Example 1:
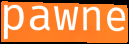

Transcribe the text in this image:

pawne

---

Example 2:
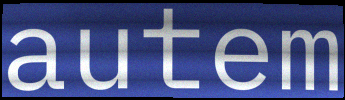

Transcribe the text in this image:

autem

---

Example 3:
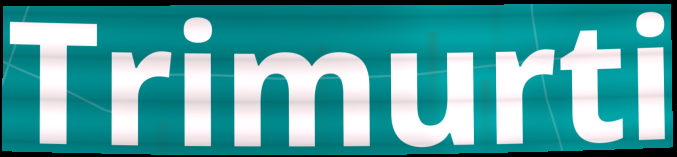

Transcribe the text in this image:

Trimurti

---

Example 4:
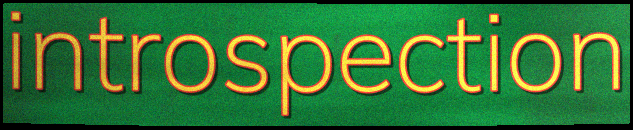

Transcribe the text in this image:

introspection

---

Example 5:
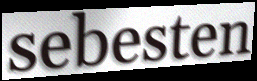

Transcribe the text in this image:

sebesten